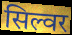
सिल्‍वर